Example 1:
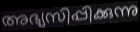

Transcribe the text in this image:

അഭ്യസിപ്പിക്കുന്നു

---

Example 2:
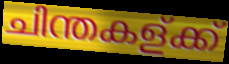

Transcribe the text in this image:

ചിന്തകള്ക്ക്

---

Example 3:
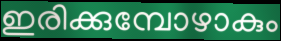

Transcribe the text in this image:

ഇരിക്കുമ്പോഴാകും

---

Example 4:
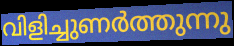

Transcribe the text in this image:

വിളിച്ചുണർത്തുന്നു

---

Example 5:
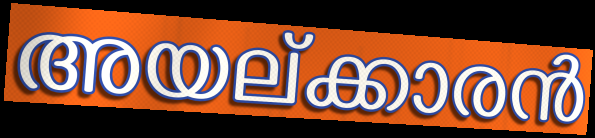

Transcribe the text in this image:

അയല്ക്കാരൻ